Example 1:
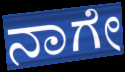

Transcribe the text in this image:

ನಾಗೇ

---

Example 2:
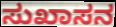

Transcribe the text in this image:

ಸುಖಾಸನ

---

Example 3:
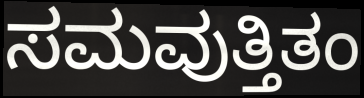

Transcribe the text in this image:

ಸಮವುತ್ತಿತಂ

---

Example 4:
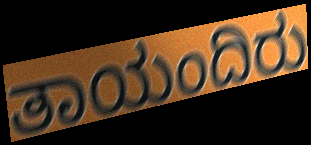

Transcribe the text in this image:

ತಾಯಂದಿರು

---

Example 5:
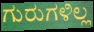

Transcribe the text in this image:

ಗುರುಗಳಿಲ್ಲ